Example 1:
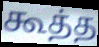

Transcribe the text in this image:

கூத்த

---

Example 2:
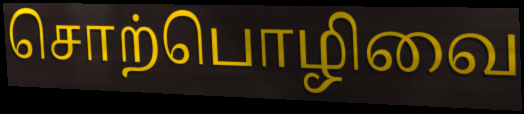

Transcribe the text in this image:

சொற்பொழிவை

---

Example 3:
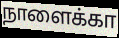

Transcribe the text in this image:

நாளைக்கா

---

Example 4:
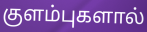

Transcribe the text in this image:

குளம்புகளால்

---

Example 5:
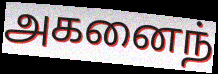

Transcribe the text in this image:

அகனைந்